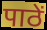
पाठें